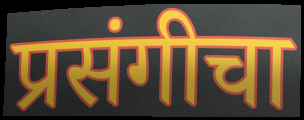
प्रसंगीचा